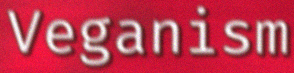
Veganism